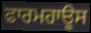
ਫਾਰਮਹਾਊਸ